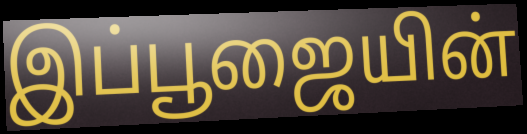
இப்பூஜையின்